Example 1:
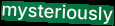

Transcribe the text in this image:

mysteriously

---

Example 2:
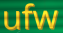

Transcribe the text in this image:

ufw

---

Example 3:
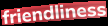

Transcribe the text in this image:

friendliness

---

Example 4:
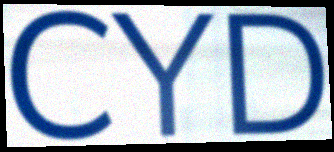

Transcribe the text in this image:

CYD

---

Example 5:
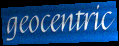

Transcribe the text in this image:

geocentric